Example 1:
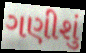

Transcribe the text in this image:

ગણીશું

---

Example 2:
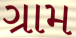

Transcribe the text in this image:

ગ્રામ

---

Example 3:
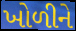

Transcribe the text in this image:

ખોળીને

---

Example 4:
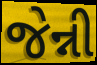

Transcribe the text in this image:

જેન્ની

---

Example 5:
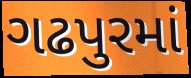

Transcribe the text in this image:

ગઢપુરમાં